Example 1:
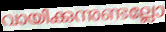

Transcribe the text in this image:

വായിക്കുന്നുണ്ടല്ലോ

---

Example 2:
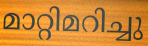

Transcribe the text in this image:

മാറ്റിമറിച്ചു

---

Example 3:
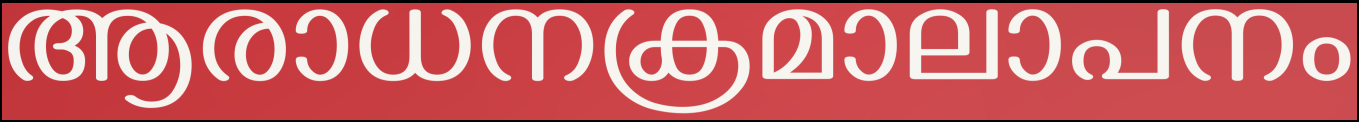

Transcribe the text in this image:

ആരാധനക്രമാലാപനം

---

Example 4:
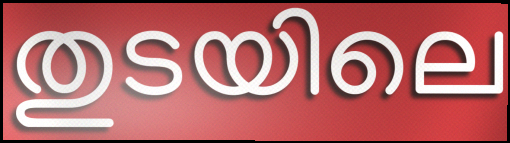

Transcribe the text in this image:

തുടയിലെ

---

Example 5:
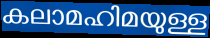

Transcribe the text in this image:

കലാമഹിമയുള്ള